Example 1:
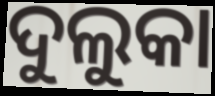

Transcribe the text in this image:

ଦୁଲୁକା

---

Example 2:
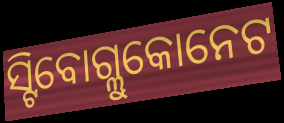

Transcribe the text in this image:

ସ୍ଟିବୋଗ୍ଲୁକୋନେଟ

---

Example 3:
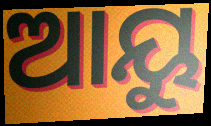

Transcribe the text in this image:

ଆୟୁ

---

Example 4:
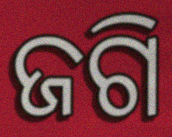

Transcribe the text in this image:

ଜଗି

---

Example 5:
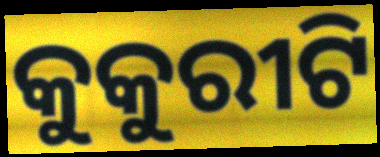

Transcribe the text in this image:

କୁକୁରୀଟି